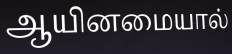
ஆயினமையால்